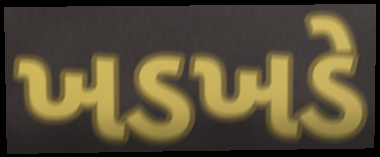
ખડખડે